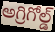
అగ్రిగోల్డ్